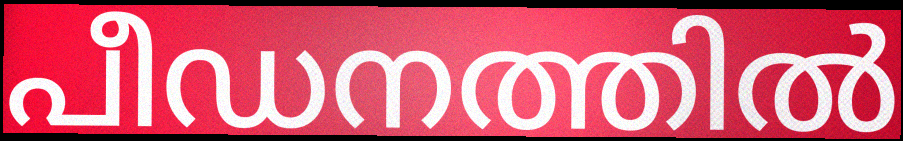
പീഡനത്തിൽ